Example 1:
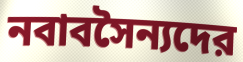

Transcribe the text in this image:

নবাবসৈন্যদের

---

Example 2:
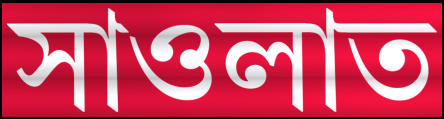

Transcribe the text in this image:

সাওলাত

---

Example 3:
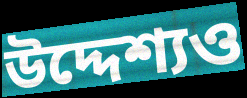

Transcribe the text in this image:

উদ্দেশ্যও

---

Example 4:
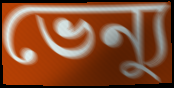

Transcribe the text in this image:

ভেন্যু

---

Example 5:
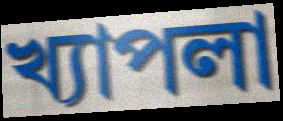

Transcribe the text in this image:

খ্যাপলা